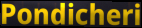
Pondicheri